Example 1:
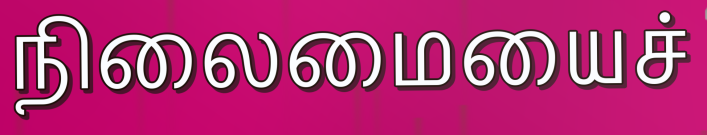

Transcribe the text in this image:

நிலைமையைச்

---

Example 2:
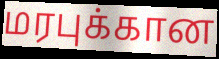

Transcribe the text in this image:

மரபுக்கான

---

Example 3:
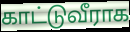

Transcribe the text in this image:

காட்டுவீராக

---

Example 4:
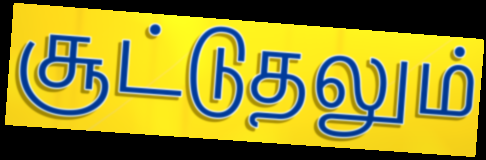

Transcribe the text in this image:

சூட்டுதலும்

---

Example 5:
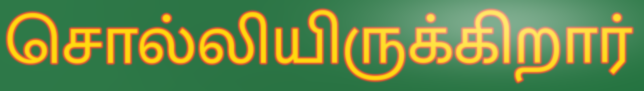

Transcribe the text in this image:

சொல்லியிருக்கிறார்